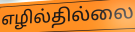
எழில்தில்லை